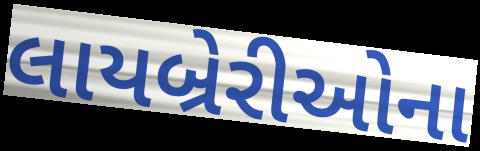
લાયબ્રેરીઓના